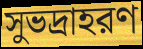
সুভদ্রাহরণ